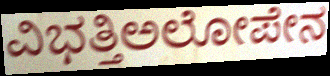
ವಿಭತ್ತಿಅಲೋಪೇನ